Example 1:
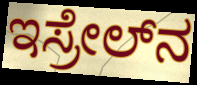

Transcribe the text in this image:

ಇಸ್ರೇಲ್‍ನ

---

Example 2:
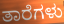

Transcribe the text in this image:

ತಾರೆಗಳು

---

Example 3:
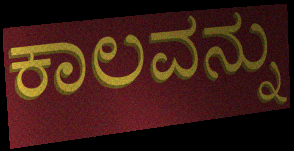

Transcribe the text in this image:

ಕಾಲವನ್ನು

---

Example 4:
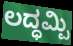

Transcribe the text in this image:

ಲದ್ಧಮ್ಪಿ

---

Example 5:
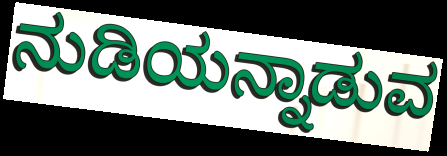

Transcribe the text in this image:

ನುಡಿಯನ್ನಾಡುವ